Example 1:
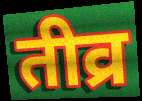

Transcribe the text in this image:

तीव्र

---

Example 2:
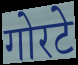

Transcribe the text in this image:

गोरटे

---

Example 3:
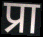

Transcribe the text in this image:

प्रा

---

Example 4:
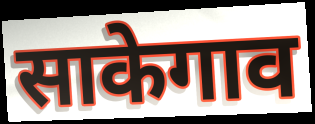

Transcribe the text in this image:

साकेगाव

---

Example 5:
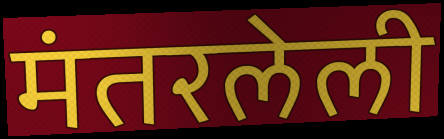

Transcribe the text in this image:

मंतरलेली